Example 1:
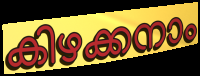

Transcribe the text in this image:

കിഴക്കനാം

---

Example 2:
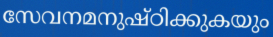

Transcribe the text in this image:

സേവനമനുഷ്ഠിക്കുകയും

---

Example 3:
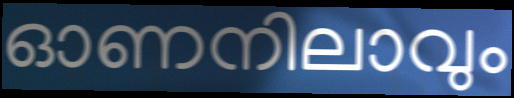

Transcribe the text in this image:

ഓണനിലാവും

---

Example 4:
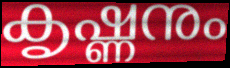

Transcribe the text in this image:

കൃഷ്ണനും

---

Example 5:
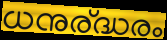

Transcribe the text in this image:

ധനുര്ദ്ധരം